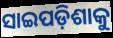
ସାଇପଡ଼ିଶାକୁ